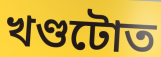
খণ্ডটোত